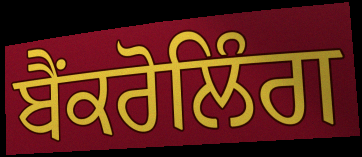
ਬੈਂਕਰੋਲਿੰਗ